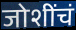
जोशींचं